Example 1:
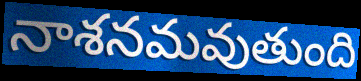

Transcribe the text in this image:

నాశనమవుతుంది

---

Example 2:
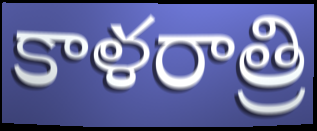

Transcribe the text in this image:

కాళరాత్రి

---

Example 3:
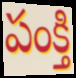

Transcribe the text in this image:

పంక్తి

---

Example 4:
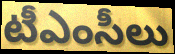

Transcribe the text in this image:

టీఎంసీలు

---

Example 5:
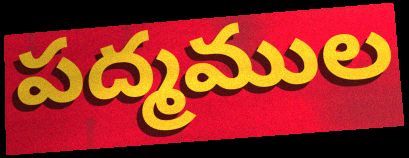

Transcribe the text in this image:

పద్మముల